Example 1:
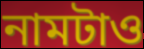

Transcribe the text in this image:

নামটাও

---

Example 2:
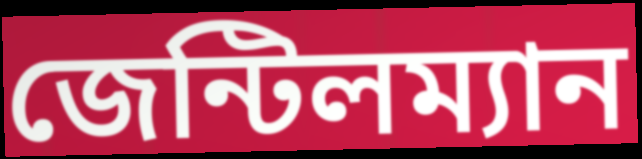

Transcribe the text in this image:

জেন্টিলম্যান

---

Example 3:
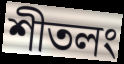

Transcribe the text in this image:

শীতলং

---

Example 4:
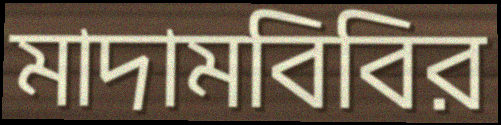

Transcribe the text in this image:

মাদামবিবির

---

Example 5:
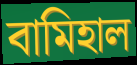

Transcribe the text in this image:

বামিহাল